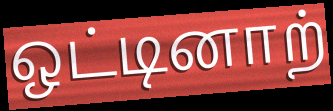
ஒட்டினாற்